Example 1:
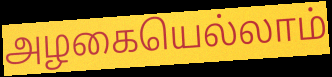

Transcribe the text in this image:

அழகையெல்லாம்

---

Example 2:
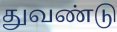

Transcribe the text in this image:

துவண்டு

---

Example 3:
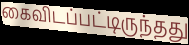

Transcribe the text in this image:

கைவிடப்பட்டிருந்தது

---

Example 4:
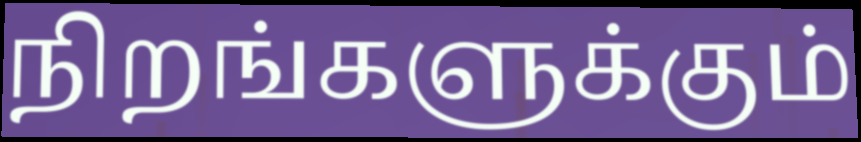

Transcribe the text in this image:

நிறங்களுக்கும்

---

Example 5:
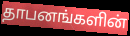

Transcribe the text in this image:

தாபனங்களின்